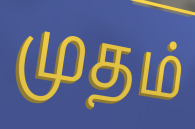
முதம்